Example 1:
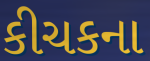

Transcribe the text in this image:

કીચકના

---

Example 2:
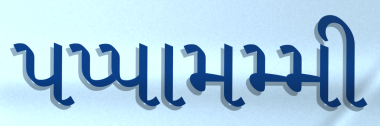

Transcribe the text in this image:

પપ્પામમ્મી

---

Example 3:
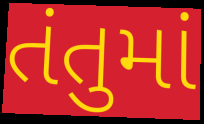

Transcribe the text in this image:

તંતુમાં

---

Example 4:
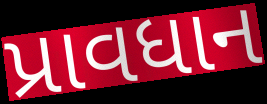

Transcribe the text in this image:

પ્રાવધાન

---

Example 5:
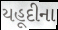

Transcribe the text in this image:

યહૂદીના